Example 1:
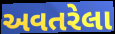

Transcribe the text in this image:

અવતરેલા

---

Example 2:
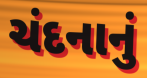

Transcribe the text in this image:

ચંદનાનું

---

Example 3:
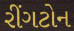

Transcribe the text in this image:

રીંગટોન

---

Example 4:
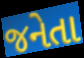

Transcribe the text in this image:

જનેતા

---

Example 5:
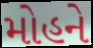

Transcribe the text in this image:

મોહને